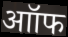
आॉफ